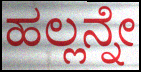
ಹಲ್ಲನ್ನೇ